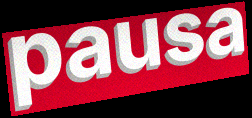
pausa